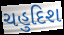
ચહુદિશ